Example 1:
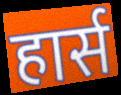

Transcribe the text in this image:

हार्स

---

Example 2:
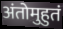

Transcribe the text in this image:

अंतोमुहुतं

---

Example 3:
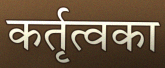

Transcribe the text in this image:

कर्तृत्वका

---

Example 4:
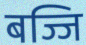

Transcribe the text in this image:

बज्जि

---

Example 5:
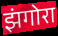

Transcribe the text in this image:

झंगोरा